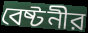
বেষ্টনীর